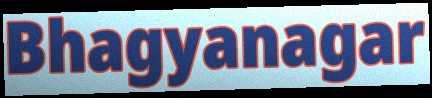
Bhagyanagar